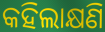
କହିଲାକ୍ଷଣି